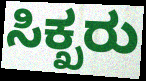
ಸಿಕ್ಖರು